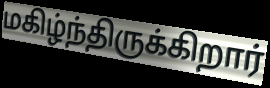
மகிழ்ந்திருக்கிறார்